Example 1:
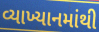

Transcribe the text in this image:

વ્યાખ્યાનમાંથી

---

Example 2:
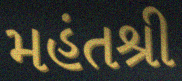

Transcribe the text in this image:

મહંતશ્રી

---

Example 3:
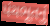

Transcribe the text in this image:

પંચભૂતનું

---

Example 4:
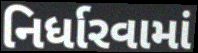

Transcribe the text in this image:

નિર્ધારવામાં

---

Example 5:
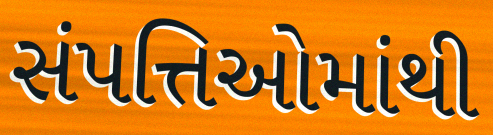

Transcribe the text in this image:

સંપત્તિઓમાંથી